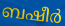
ബഷീർ